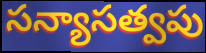
సన్యాసత్వపు